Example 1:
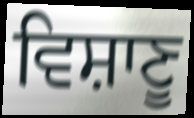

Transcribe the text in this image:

ਵਿਸ਼ਾਣੂ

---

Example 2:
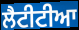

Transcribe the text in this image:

ਲੈਟੀਟੀਆ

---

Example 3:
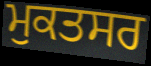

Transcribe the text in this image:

ਮੁਕਤਸਰ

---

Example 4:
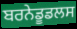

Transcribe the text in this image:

ਬਰਨੇਡੂਡਲਸ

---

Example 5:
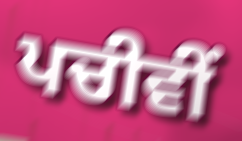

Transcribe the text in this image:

ਪਚੀਵੀਂ